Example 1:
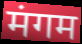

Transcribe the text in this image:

मंगम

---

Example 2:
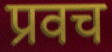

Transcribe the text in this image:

प्रवच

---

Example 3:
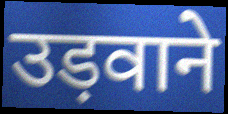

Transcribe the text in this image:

उड़वाने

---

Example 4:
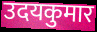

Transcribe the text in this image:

उदयकुमार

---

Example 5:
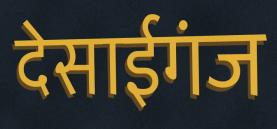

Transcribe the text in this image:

देसाईगंज